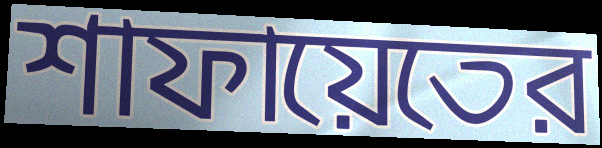
শাফায়েতের